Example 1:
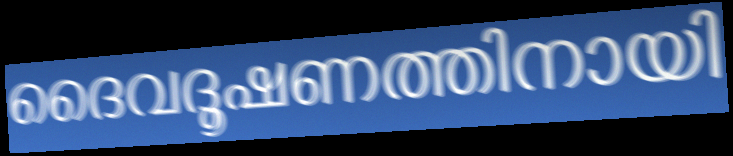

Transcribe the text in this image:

ദൈവദൂഷണത്തിനായി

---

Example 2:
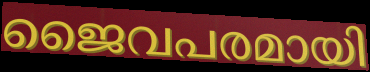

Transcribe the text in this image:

ജൈവപരമായി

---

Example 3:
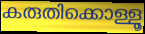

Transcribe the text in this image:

കരുതിക്കൊള്ളൂ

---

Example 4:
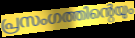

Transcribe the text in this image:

പ്രസംഗത്തിന്റെയും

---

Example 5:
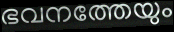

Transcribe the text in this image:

ഭവനത്തേയും